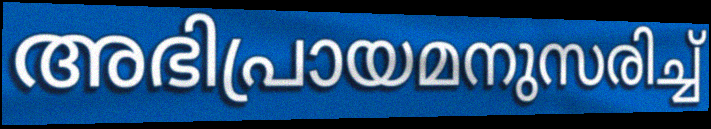
അഭിപ്രായമനുസരിച്ച്